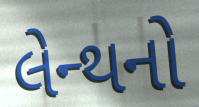
લેન્થનો